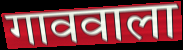
गाववाला